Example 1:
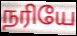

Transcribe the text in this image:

நரியே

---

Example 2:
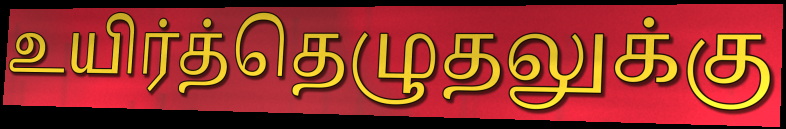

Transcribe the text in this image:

உயிர்த்தெழுதலுக்கு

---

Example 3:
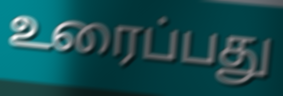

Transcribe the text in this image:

உரைப்பது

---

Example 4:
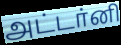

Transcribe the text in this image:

அட்டர்னி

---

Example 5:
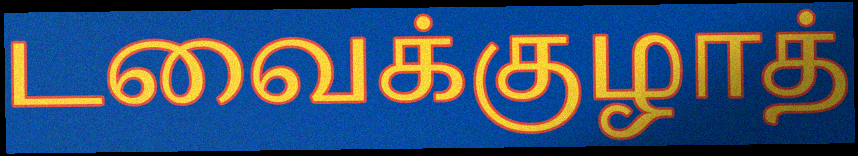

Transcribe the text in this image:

டவைக்குழாத்